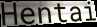
Hentai